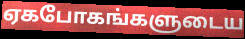
ஏகபோகங்களுடைய